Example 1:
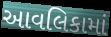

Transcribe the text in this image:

આવલિકામાં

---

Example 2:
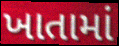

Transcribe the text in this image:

ખાતામાં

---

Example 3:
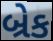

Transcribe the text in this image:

બ્રેક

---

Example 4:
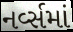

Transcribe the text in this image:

નર્વ્સમાં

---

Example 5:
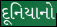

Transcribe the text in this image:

દૂનિયાનો